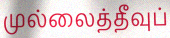
முல்லைத்தீவுப்